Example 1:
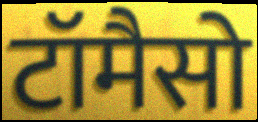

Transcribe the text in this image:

टॉमैसो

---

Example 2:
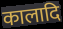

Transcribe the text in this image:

कालादि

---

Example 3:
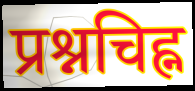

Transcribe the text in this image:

प्रश्नचिह्न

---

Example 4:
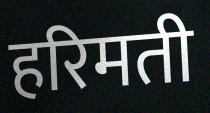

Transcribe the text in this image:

हरिमती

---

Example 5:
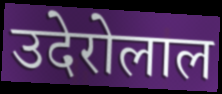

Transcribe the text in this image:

उदेरोलाल